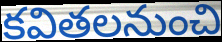
కవితలనుంచి